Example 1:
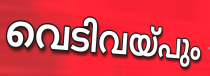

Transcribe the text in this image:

വെടിവയ്പും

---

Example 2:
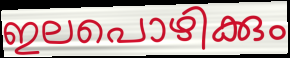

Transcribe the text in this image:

ഇലപൊഴിക്കും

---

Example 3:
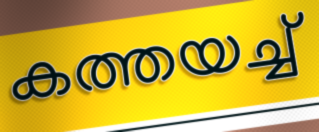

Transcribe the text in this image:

കത്തയച്ച്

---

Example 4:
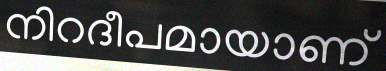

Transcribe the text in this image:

നിറദീപമായാണ്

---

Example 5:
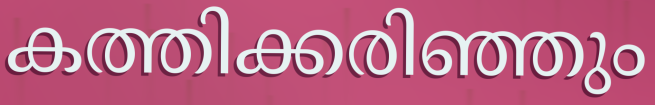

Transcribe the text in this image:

കത്തിക്കരിഞ്ഞും